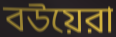
বউয়েরা